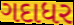
ગદાધર